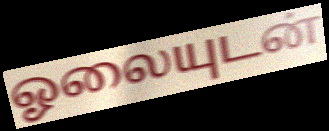
ஓலையுடன்